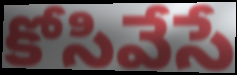
కోసివేసే